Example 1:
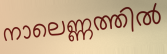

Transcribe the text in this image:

നാലെണ്ണത്തിൽ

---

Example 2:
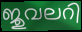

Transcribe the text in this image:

ജുവലറി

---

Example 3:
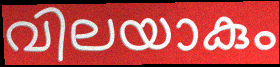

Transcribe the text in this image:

വിലയാകും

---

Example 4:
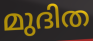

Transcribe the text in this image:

മുദിത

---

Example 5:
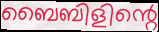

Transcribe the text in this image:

ബൈബിളിന്റെ